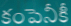
కంపెనీకీ